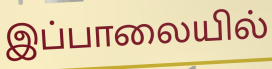
இப்பாலையில்